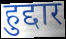
हुद्दार